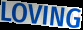
LOVING